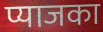
प्याजका